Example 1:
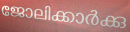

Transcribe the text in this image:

ജോലിക്കാർക്കു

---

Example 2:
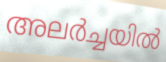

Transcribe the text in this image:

അലർച്ചയിൽ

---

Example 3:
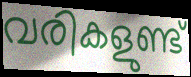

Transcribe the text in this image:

വരികളുണ്ട്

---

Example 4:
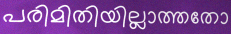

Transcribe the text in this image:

പരിമിതിയില്ലാത്തതോ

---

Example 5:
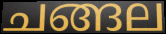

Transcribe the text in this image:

ചങ്ങല